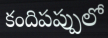
కందిపప్పులో